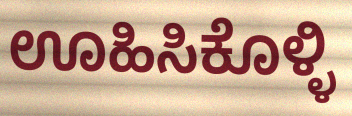
ಊಹಿಸಿಕೊಳ್ಳಿ